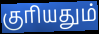
குரியதும்